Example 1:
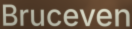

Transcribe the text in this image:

Bruceven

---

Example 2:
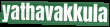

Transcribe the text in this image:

yathavakkula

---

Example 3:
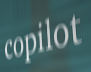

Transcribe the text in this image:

copilot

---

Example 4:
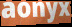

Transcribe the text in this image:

aonyx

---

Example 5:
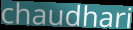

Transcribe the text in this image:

chaudhari